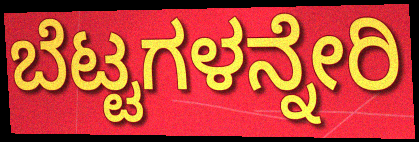
ಬೆಟ್ಟಗಳನ್ನೇರಿ